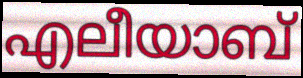
എലീയാബ്